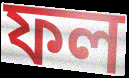
ফল